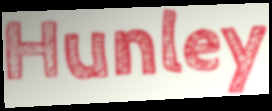
Hunley